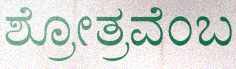
ಶ್ರೋತ್ರವೆಂಬ